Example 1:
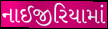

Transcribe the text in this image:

નાઈજીરિયામાં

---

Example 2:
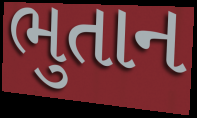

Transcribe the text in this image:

ભુતાન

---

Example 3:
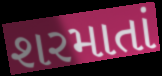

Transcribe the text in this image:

શરમાતાં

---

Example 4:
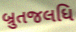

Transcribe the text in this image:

બ્રુતજલધિ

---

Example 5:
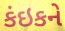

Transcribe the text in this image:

કંઇકને